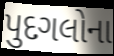
પુદગલોના